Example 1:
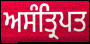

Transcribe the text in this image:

ਅਸੰਤ੍ਰਿਪਤ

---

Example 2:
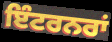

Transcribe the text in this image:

ਇੰਟਰਨਰਾਂ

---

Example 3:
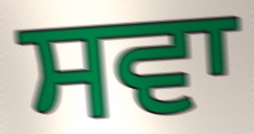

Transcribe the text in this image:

ਸਵਾ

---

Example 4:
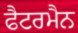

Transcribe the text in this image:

ਫੈਟਰਮੈਨ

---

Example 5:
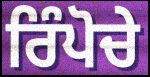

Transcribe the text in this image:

ਰਿੰਪੋਚੇ